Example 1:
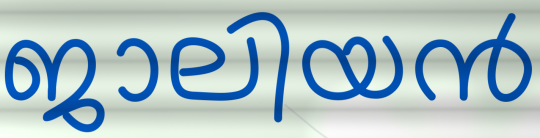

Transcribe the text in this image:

ജാലിയൻ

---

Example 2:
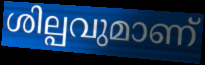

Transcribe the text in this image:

ശില്പവുമാണ്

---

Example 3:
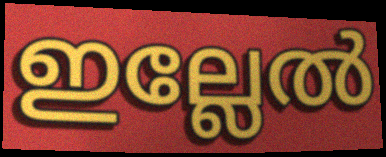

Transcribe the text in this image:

ഇല്ലേൽ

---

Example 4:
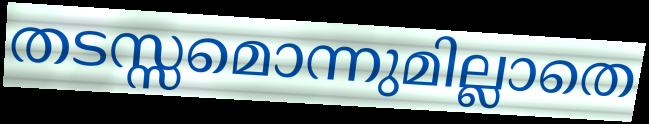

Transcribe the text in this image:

തടസ്സമൊന്നുമില്ലാതെ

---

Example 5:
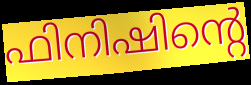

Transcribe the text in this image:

ഫിനിഷിന്റെ